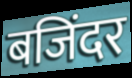
बजिंदर